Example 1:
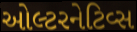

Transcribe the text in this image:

ઓલ્ટરનેટિવ્સ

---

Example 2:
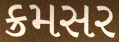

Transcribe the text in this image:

ક્રમસર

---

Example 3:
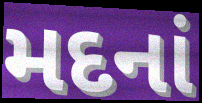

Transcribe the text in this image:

મદનાં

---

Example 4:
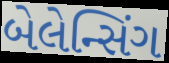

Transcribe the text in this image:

બેલેન્સિંગ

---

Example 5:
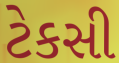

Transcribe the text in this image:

ટેકસી